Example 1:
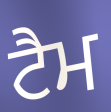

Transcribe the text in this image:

ਟੈਮ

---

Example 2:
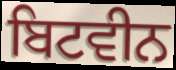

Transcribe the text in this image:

ਬਿਟਵੀਨ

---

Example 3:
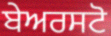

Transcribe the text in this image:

ਬੇਅਰਸਟੋ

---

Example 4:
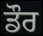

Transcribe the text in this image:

ਡੌਰ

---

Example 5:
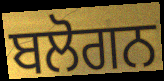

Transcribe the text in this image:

ਬਲੋਗਨ